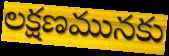
లక్షణమునకు